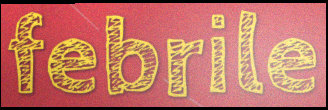
febrile